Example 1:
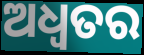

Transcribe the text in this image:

ଅଧ୍ଵତର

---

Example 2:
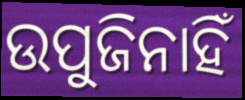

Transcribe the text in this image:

ଉପୁଜିନାହିଁ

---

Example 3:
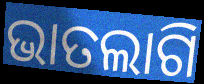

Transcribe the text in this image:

ଭାତଲାଗି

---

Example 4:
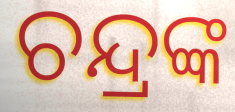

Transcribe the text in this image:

ଚନ୍ଦ୍ରଙ୍କ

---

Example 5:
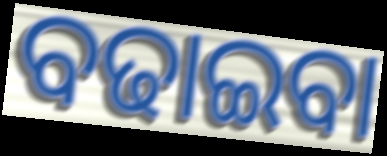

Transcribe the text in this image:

ବଢାଇବା